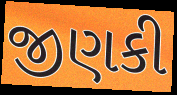
જીણકી